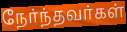
நேர்ந்தவர்கள்